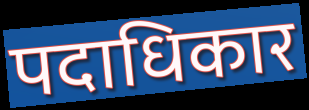
पदाधिकार